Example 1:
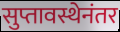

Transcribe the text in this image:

सुप्तावस्थेनंतर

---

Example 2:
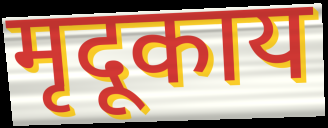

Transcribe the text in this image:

मृदूकाय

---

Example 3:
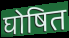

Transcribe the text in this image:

घोषित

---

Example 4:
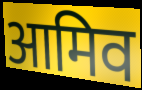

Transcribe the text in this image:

आमिव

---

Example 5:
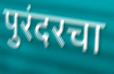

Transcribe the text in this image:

पुरंदरचा